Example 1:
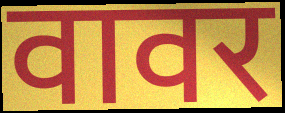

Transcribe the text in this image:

वावर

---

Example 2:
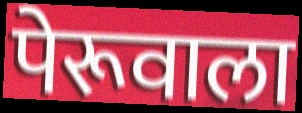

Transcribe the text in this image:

पेरूवाला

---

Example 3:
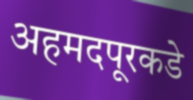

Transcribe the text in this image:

अहमदपूरकडे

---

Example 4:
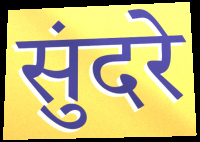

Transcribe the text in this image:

सुंदरे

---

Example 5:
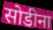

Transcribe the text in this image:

सोडीना